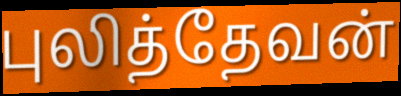
புலித்தேவன்